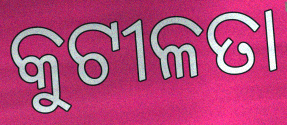
କୁଟୀଳତା